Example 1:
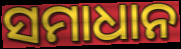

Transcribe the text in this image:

ସମାଧାନ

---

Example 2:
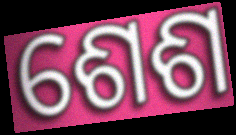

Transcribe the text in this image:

ଶେଶ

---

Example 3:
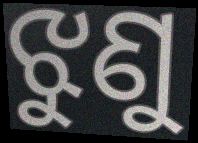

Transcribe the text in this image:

ଝୁଣୁ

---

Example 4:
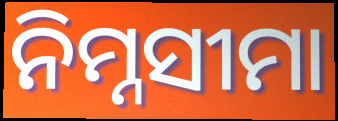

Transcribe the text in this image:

ନିମ୍ନସୀମା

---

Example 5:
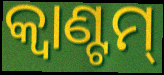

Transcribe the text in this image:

କ୍ଵାଣ୍ଟମ୍